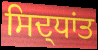
ਸਿਦ੍ਧਾਂਤ